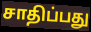
சாதிப்பது